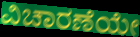
ವಿಚಾರಣೆಯೇ